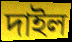
দাইল